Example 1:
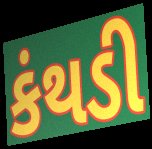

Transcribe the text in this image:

કંથડી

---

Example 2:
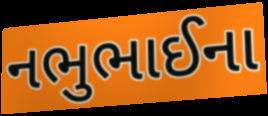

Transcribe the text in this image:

નભુભાઈના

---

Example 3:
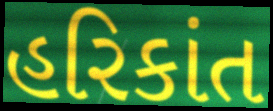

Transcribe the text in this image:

હરિકાંત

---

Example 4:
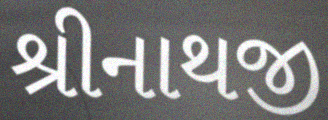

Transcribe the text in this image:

શ્રીનાથજી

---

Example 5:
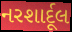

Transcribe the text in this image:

નરશાર્દૂલ